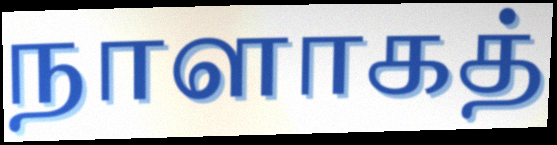
நாளாகத்